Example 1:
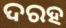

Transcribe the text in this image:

ଦରହ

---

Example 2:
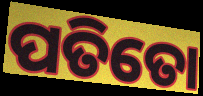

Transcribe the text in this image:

ପତିତୋ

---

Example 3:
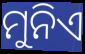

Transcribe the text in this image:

ମୁନିଏ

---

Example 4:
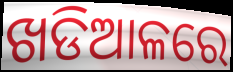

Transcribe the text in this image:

ଖଡିଆଳରେ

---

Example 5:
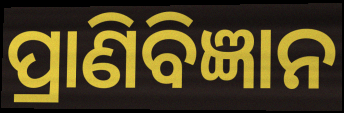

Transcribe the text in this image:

ପ୍ରାଣିବିଜ୍ଞାନ